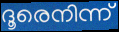
ദൂരെനിന്ന്